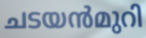
ചടയൻമുറി